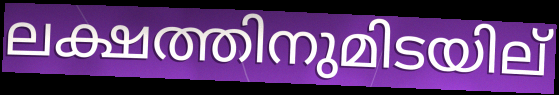
ലക്ഷത്തിനുമിടയില്